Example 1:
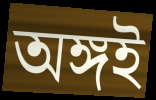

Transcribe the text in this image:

অঙ্গই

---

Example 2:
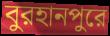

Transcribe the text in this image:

বুরহানপুরে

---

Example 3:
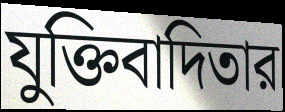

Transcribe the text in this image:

যুক্তিবাদিতার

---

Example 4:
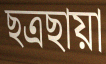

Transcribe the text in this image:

ছত্রছায়া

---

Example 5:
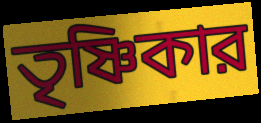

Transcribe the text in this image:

তৃষ্ণিকার